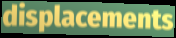
displacements